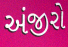
અંજીરો